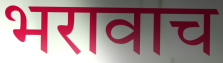
भरावाच